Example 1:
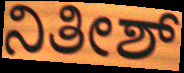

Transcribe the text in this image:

ನಿತೀಶ್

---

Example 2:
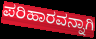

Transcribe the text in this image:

ಪರಿಹಾರವನ್ನಾಗಿ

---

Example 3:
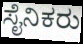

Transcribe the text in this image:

ಸೈನಿಕರು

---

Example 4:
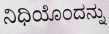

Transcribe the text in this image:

ನಿಧಿಯೊಂದನ್ನು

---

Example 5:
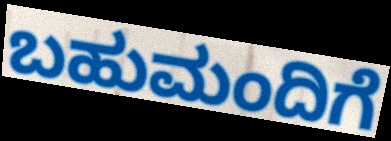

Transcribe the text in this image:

ಬಹುಮಂದಿಗೆ